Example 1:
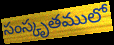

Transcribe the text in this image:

సంస్కృతములో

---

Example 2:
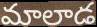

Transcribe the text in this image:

మాలాడ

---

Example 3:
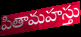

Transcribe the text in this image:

పితామహస్తు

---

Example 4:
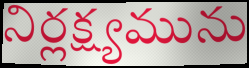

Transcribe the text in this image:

నిర్లక్ష్యమును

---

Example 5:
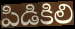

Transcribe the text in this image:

పిడికిలి